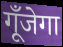
गूँजेगा